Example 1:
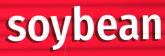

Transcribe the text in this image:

soybean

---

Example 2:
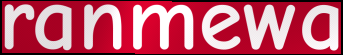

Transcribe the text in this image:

ranmewa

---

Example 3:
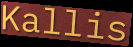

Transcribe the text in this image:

Kallis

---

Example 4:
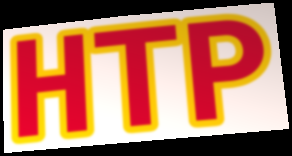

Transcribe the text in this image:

HTP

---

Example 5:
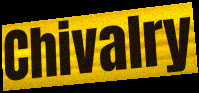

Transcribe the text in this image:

Chivalry